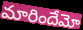
మారిందేమో